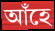
আঁহে